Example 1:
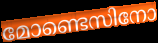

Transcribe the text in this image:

മോണ്ടെസിനോ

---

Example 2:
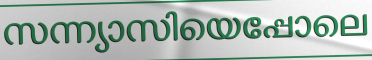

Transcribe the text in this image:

സന്ന്യാസിയെപ്പോലെ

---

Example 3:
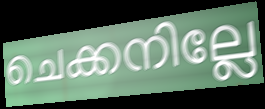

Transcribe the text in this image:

ചെക്കനില്ലേ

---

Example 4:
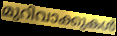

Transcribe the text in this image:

മുറിവാക്കുകൾ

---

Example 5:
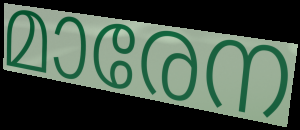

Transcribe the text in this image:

മാരേന